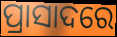
ପ୍ରାସାଦରେ